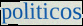
politicos